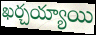
ఖర్చయ్యాయి